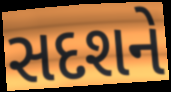
સદશને